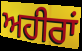
ਅਹੀਰਾਂ